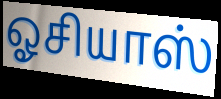
ஓசியாஸ்